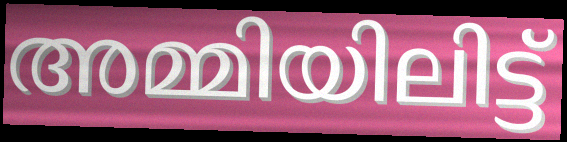
അമ്മിയിലിട്ട്